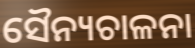
ସୈନ୍ୟଚାଳନା